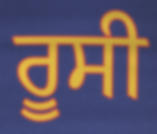
ਰੂਸੀ